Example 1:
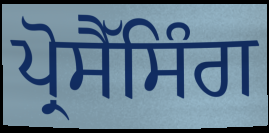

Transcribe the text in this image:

ਪ੍ਰੋਸੈੱਸਿੰਗ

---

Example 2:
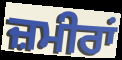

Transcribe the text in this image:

ਜ਼ਮੀਰਾਂ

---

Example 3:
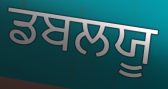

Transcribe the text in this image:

ਡਬਲਯੂ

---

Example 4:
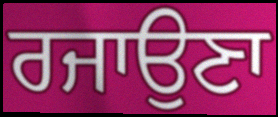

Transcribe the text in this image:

ਰਜਾਉਣਾ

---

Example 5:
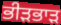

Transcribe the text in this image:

ਭੀੜਭਾੜ